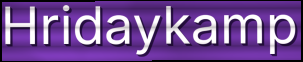
Hridaykamp